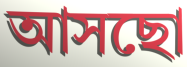
আসছো